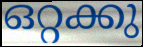
ഒറ്റക്കു